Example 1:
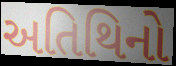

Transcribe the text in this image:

અતિથિનો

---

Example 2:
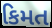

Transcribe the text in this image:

કિમત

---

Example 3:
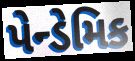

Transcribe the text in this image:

પેન્ડેમિક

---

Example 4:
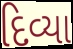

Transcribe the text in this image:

દિવ્યા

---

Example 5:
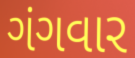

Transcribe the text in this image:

ગંગવાર